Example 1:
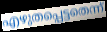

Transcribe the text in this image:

എഴുതപ്പെട്ടതെന്ന്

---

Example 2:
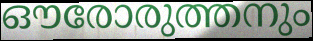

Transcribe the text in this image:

ഔരോരുത്തനും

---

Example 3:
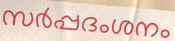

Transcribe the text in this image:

സർപ്പദംശനം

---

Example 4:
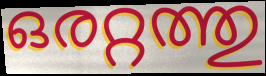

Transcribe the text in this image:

ഒരറ്റത്തു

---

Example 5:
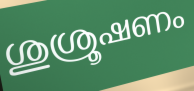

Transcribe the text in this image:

ശുശ്രൂഷണം